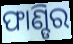
ଫାଣ୍ଡିର